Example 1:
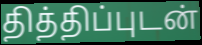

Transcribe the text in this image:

தித்திப்புடன்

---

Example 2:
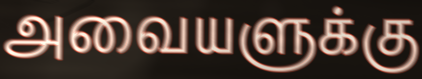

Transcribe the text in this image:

அவையளுக்கு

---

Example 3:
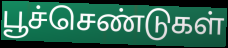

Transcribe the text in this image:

பூச்செண்டுகள்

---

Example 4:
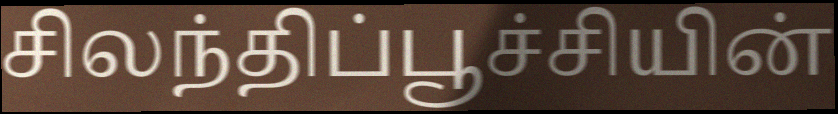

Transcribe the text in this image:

சிலந்திப்பூச்சியின்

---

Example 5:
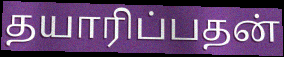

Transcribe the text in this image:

தயாரிப்பதன்